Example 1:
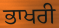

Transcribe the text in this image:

ਭਾਖਰੀ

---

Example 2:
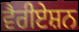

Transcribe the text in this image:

ਵੈਰੀਏਸ਼ਨ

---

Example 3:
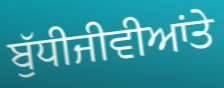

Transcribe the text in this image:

ਬੁੱਧੀਜੀਵੀਆਂਤੇ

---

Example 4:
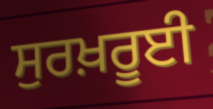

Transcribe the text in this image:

ਸੁਰਖ਼ਰੂਈ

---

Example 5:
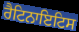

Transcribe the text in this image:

ਰੈਟਿਨਾਇਟਿਸ